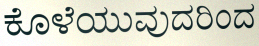
ಕೊಳೆಯುವುದರಿಂದ